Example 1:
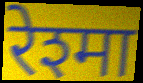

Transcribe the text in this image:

रेश्मा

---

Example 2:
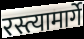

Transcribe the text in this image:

रस्त्यामार्गे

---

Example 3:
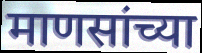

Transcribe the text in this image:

माणसांच्या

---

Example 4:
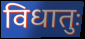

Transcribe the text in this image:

विधातुः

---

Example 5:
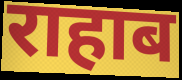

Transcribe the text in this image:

राहाब